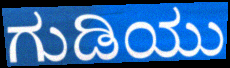
ಗುಡಿಯು